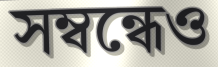
সম্বন্ধেও